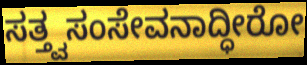
ಸತ್ತ್ವಸಂಸೇವನಾದ್ಧೀರೋ